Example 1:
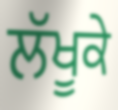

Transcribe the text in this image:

ਲੱਖੂਕੇ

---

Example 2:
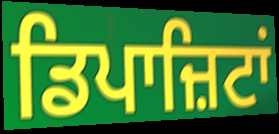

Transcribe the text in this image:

ਡਿਪਾਜ਼ਿਟਾਂ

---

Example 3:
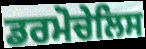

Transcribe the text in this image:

ਡਰਮੋਚੇਲਿਸ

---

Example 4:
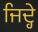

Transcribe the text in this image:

ਜਿਦ੍ਹੇ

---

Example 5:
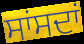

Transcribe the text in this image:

ਸਾਂਸਦਾਂ